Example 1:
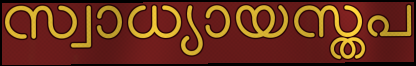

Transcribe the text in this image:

സ്വാധ്യായസ്തപ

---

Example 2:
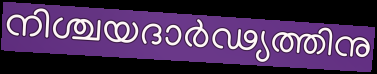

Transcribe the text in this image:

നിശ്ചയദാർഢ്യത്തിനു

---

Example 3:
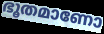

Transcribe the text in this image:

ഭൂതമാണോ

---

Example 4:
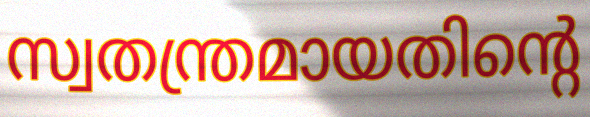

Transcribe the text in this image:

സ്വതന്ത്രമായതിന്റെ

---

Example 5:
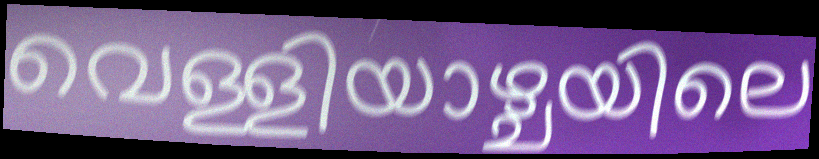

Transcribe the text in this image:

വെള്ളിയാഴ്ചയിലെ